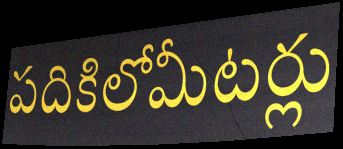
పదికిలోమీటర్లు